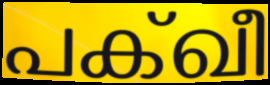
പക്ഖീ